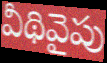
వీథివైపు